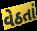
વેઠતાં